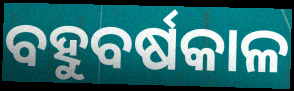
ବହୁବର୍ଷକାଳ